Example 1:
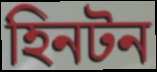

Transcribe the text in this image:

হিনটন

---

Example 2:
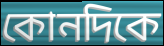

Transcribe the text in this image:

কোনদিকে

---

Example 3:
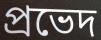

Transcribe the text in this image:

প্রভেদ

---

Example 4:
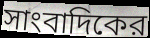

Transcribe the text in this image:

সাংবাদিকের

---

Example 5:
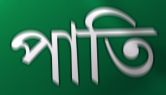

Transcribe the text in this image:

পাতি